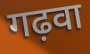
गढ़वा